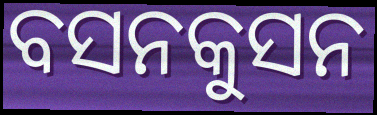
ବସନକୁସନ